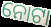
ନୋଟା